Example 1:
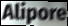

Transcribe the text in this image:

Alipore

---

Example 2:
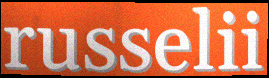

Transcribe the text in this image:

russelii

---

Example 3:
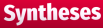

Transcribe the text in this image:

Syntheses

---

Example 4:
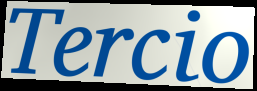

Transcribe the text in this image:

Tercio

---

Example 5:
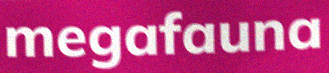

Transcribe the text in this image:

megafauna